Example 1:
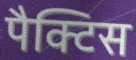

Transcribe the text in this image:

पैक्टिस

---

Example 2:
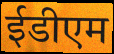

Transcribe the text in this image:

ईडीएम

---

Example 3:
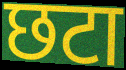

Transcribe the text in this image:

छटा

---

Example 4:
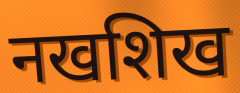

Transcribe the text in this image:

नखशिख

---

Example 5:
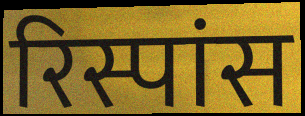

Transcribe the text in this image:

रिस्पांस